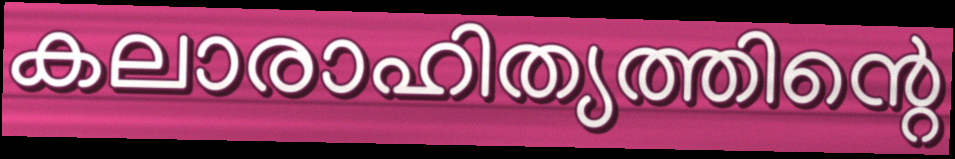
കലാരാഹിത്യത്തിന്റെ